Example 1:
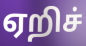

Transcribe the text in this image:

ஏறிச்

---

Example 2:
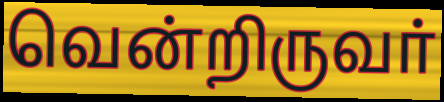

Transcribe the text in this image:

வென்றிருவர்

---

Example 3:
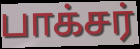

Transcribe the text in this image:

பாக்சர்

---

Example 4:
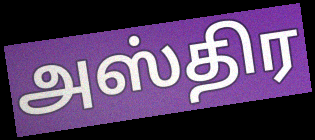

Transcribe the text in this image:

அஸ்திர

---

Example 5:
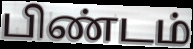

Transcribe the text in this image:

பிண்டம்